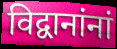
विद्वानांनां